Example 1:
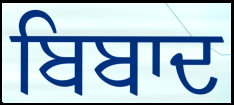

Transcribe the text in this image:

ਬਿਬਾਦ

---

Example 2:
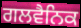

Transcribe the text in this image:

ਗਲਵੈਨਿਕ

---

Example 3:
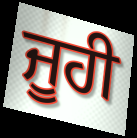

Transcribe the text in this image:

ਜੂਹੀ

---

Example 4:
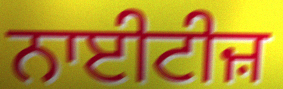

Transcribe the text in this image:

ਨਾਈਟੀਜ਼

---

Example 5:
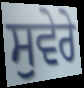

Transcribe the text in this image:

ਸੁਵੇਰੇ